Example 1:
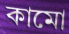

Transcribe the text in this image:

কামো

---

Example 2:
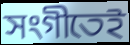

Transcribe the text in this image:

সংগীতেই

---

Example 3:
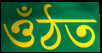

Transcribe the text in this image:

ওঁঠত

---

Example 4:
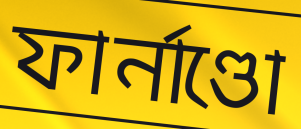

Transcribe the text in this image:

ফাৰ্নাণ্ডো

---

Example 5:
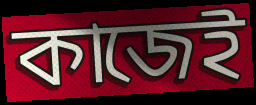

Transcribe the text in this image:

কাজেই